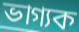
ভাগ্যক